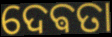
ଦେଵତା